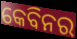
କେବିନର